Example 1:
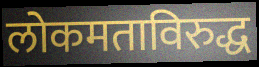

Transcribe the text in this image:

लोकमताविरुद्ध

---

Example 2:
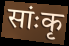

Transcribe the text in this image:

सांःकृ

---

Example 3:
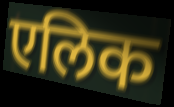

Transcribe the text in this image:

एलिक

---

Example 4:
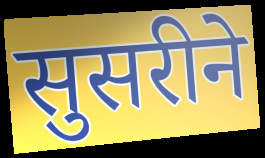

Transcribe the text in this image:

सुसरीने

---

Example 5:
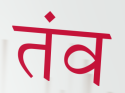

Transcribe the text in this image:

तंव